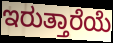
ಇರುತ್ತಾರೆಯೆ